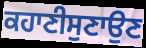
ਕਹਾਣੀਸੁਣਾਉਣ